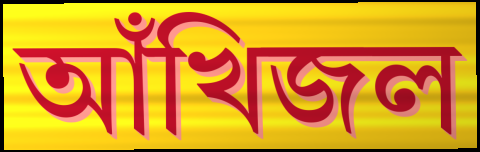
আঁখিজল